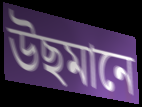
উছমানে